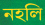
নহলি